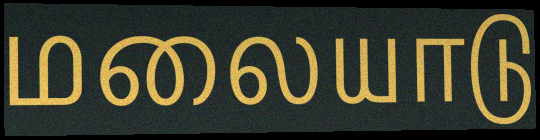
மலையாடு